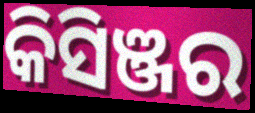
କିସିଞ୍ଜର